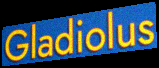
Gladiolus